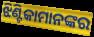
ଝିଣ୍ଟିକାମାନଙ୍କର